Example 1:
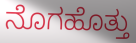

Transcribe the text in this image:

ನೊಗಹೊತ್ತು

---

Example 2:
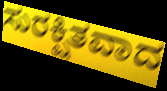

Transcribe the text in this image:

ಸುರಕ್ಷಿತವಾದ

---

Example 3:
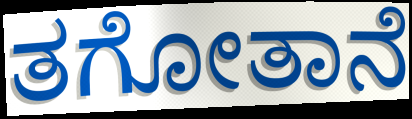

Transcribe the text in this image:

ತಗೋತಾನೆ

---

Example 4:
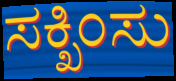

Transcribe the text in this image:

ಸಕ್ಖಿಂಸು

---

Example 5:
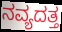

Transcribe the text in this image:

ನವ್ಯದತ್ತ